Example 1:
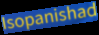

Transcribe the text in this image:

Isopanishad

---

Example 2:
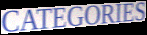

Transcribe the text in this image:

CATEGORIES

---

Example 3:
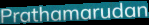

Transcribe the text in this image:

Prathamarudan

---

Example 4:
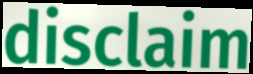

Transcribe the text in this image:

disclaim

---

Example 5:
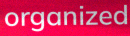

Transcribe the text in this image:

organized